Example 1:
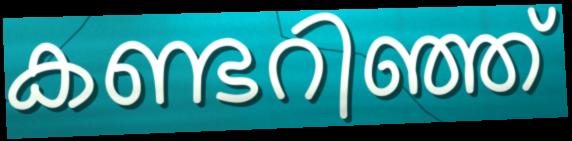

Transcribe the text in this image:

കണ്ടറിഞ്ഞ്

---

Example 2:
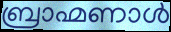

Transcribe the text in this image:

ബ്രാഹ്മണാൾ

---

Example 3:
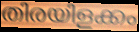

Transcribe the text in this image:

തിരയിളക്കം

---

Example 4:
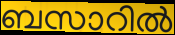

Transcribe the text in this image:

ബസാറിൽ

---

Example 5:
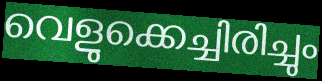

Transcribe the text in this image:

വെളുക്കെച്ചിരിച്ചും